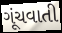
ગૂંચવાતી